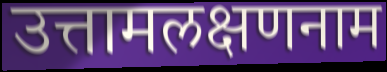
उत्तामलक्षणनाम